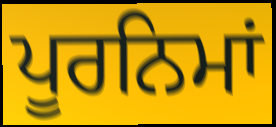
ਪੂਰਨਿਮਾਂ